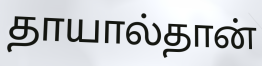
தாயால்தான்